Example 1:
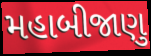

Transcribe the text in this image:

મહાબીજાણુ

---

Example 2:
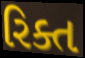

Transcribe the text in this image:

રિક્ત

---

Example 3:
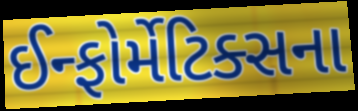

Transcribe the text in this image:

ઈન્ફોર્મેટિક્સના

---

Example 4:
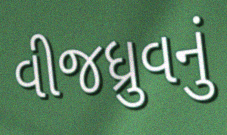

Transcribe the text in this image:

વીજધ્રુવનું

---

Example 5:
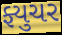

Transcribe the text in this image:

ફ્યુચર